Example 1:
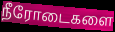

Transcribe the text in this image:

நீரோடைகளை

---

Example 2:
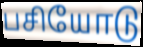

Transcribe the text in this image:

பசியோடு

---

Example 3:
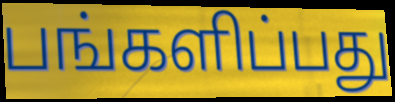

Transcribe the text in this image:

பங்களிப்பது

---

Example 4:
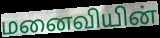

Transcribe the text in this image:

மனைவியின்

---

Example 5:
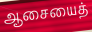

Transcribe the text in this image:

ஆசையைத்